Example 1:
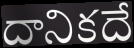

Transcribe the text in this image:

దానికదే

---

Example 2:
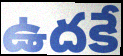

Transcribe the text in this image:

ఉదకే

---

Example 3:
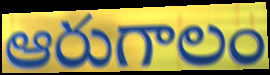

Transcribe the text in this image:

ఆరుగాలం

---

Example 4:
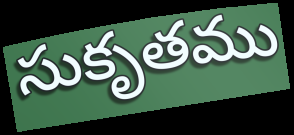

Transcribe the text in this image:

సుకృతము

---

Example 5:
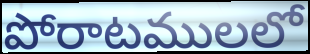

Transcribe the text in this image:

పోరాటములలో